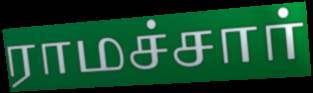
ராமச்சார்